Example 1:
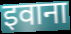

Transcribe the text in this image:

इवाना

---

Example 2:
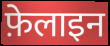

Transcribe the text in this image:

फ़ेलाइन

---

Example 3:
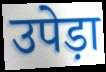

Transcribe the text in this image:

उपेड़ा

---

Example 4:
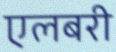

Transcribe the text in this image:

एलबरी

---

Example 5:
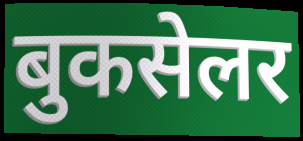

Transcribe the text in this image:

बुकसेलर